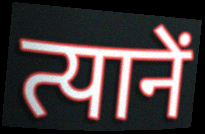
त्यानें